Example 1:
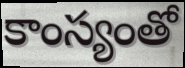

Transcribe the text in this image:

కాంస్యంతో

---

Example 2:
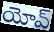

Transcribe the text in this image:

యోవ్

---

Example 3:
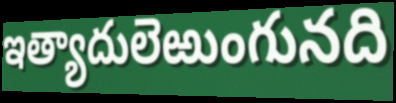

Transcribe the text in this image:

ఇత్యాదులెఱుంగునది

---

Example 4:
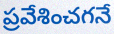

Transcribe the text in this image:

ప్రవేశించగనే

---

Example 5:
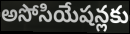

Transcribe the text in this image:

అసోసియేషన్లకు